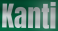
Kanti